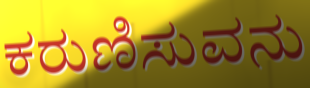
ಕರುಣಿಸುವನು